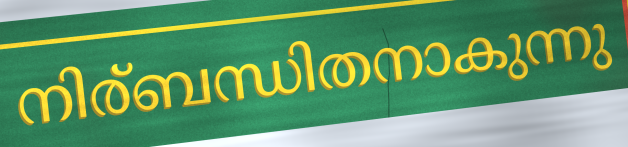
നിര്ബന്ധിതനാകുന്നു